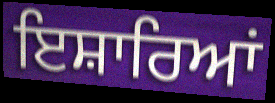
ਇਸ਼ਾਰਿਆਂ